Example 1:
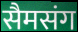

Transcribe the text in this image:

सैमसंग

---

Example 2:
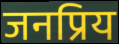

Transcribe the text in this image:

जनप्रिय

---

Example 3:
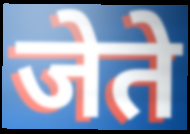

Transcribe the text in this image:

जेते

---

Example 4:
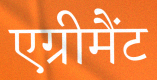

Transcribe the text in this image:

एग्रीमैंट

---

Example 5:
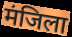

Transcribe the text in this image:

मंजिला